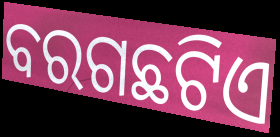
ବରଗଛଟିଏ